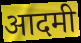
आदमी